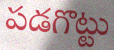
పడగొట్టు